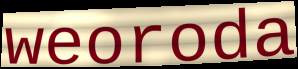
weoroda